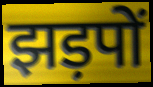
झड़पों